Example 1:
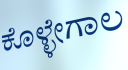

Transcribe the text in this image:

ಕೊಳ್ಳೇಗಾಲ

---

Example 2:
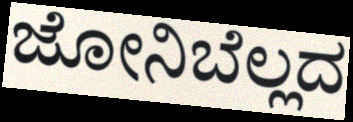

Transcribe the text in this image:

ಜೋನಿಬೆಲ್ಲದ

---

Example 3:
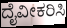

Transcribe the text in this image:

ದೈವೀಕರಿಸಿ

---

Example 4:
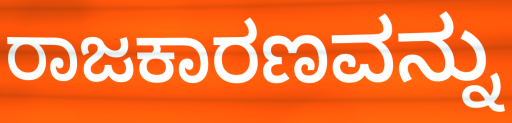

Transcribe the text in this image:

ರಾಜಕಾರಣವನ್ನು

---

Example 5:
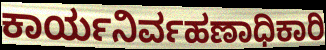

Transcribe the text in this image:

ಕಾರ್ಯನಿರ್ವಹಣಾಧಿಕಾರಿ